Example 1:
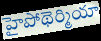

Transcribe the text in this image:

హైపోథెర్మియా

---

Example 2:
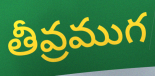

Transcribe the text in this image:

తీవ్రముగ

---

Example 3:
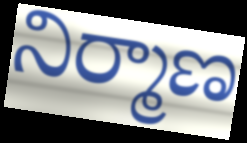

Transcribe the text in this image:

నిర్మాణ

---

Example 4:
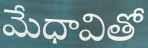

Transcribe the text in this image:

మేధావితో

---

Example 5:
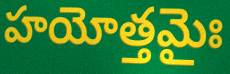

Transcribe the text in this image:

హయోత్తమైః